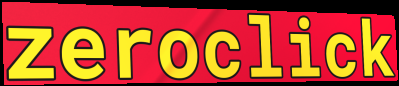
zeroclick